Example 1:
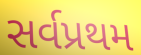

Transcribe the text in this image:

સર્વપ્રથમ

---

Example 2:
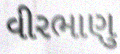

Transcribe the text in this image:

વીરભાણુ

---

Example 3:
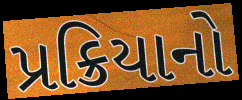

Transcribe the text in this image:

પ્રક્રિયાનો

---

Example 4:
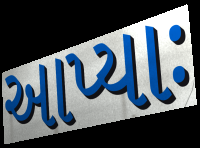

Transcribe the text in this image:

આપ્યાઃ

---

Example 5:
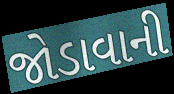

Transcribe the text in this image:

જોડાવાની